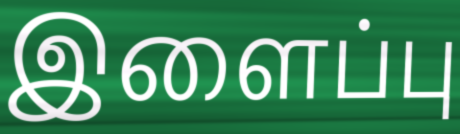
இளைப்பு